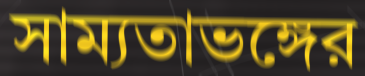
সাম্যতাভঙ্গের